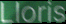
Lloris